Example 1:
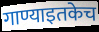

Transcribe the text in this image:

गाण्याइतकेच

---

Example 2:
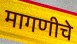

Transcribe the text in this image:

मागणीचे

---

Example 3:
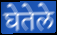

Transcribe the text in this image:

घेतेले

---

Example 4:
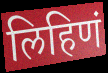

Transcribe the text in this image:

लिहिणं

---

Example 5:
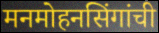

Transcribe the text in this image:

मनमोहनसिंगांची